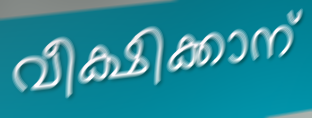
വീക്ഷിക്കാന്